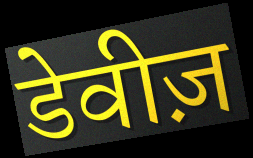
डेवीज़